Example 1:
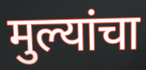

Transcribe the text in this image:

मुल्यांचा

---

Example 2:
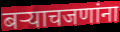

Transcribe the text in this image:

बऱ्याचजणांना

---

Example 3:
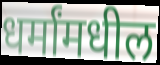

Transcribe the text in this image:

धर्मांमधील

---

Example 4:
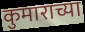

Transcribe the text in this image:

कुमाराच्या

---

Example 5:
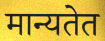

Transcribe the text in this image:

मान्यतेत